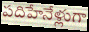
పదిహేనేళ్లుగా